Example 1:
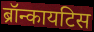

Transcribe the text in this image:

ब्रॉन्कायटिस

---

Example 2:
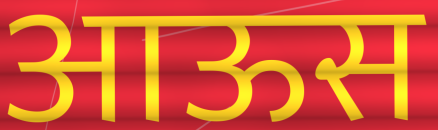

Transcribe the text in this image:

आऊस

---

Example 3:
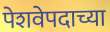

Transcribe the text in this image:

पेशवेपदाच्या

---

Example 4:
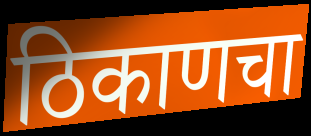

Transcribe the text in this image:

ठिकाणचा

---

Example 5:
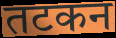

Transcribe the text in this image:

तटकन